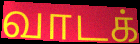
வாடக்